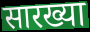
सारख्या